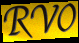
RVO